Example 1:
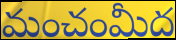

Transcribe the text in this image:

మంచంమీద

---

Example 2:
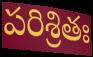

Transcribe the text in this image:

పరిశ్రితః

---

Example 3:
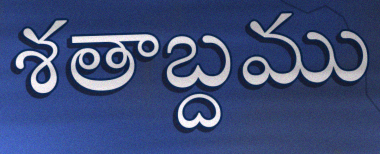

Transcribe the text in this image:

శతాబ్దము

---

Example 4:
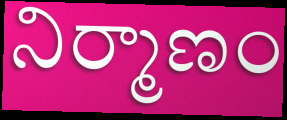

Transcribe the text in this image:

నిర్మాణం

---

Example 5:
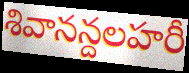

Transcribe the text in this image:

శివానన్దలహరీ